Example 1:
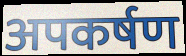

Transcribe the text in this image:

अपकर्षण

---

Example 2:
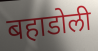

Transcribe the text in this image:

बहाडोली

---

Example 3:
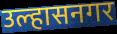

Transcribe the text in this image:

उल्हासनगर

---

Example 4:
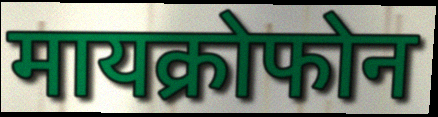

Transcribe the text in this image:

मायक्रोफोन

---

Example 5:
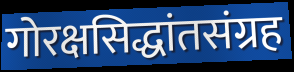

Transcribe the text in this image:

गोरक्षसिद्धांतसंग्रह